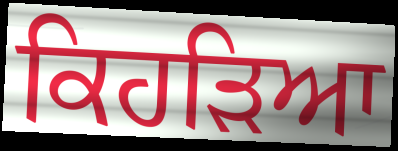
ਕਿਹੜਿਆ